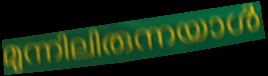
മുന്നിലിരുന്നയാൾ